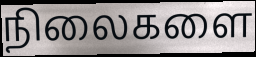
நிலைகளை